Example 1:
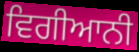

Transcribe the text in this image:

ਵਿਗੀਆਨੀ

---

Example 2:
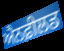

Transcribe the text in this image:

ਐਨਫ਼ੀਲਡ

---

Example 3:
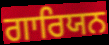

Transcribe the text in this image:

ਗਾਰਿਯਨ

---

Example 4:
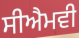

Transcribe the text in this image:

ਸੀਐਮਵੀ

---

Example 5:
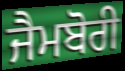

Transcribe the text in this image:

ਜੈਮਬੋਰੀ